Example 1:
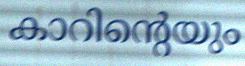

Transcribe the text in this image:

കാറിന്റെയും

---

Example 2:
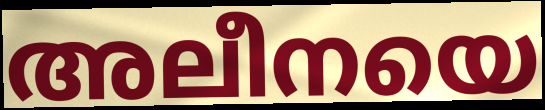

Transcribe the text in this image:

അലീനയെ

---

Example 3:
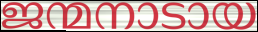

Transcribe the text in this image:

ജന്മനാടായ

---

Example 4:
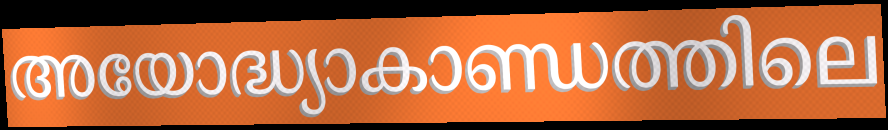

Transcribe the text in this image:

അയോദ്ധ്യാകാണ്ഡത്തിലെ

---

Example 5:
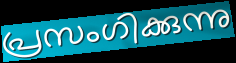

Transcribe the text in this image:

പ്രസംഗിക്കുന്നു